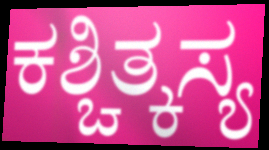
ಕಶ್ಚಿತ್ಕಸ್ಯ